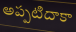
అప్పటిదాకా